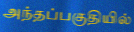
அந்தப்பகுதியில்